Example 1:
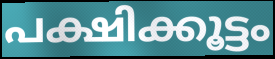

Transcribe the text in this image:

പക്ഷിക്കൂട്ടം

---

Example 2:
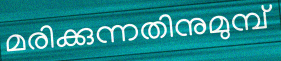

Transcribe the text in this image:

മരിക്കുന്നതിനുമുമ്പ്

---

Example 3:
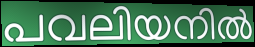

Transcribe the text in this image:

പവലിയനിൽ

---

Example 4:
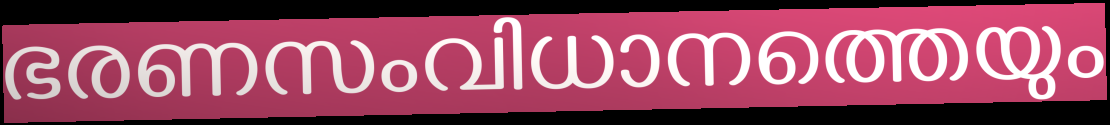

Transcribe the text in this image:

ഭരണസംവിധാനത്തെയും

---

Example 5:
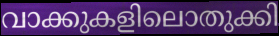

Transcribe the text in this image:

വാക്കുകളിലൊതുക്കി